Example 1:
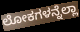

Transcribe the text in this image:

ಲೋಕಗಳನ್ನೆಲ್ಲಾ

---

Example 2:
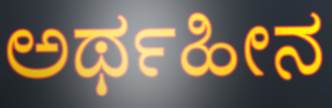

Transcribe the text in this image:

ಅರ್ಥಹೀನ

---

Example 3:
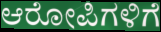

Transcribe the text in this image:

ಆರೋಪಿಗಳಿಗೆ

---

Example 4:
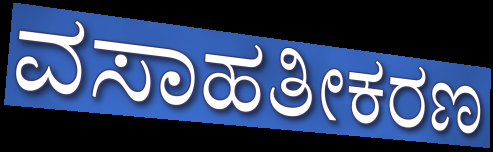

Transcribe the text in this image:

ವಸಾಹತೀಕರಣ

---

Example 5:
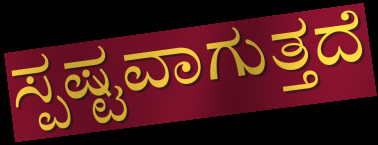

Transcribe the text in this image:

ಸ್ಪಷ್ಟವಾಗುತ್ತದೆ